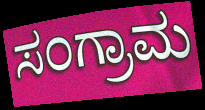
ಸಂಗ್ರಾಮ